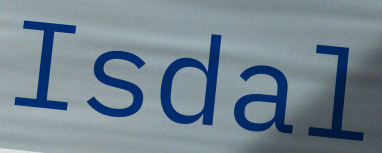
Isdal